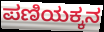
ಪಣಿಯಕ್ಕನ